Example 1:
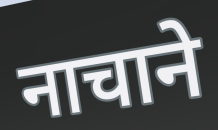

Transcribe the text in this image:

नाचाने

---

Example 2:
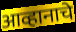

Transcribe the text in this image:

आव्हानाचे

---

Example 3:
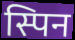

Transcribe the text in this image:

स्पिन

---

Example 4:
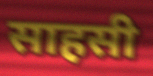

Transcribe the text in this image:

साहसी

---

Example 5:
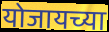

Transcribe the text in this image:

योजायच्या